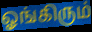
ஓங்கிரும்